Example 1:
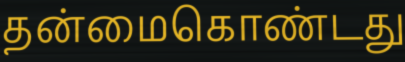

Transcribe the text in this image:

தன்மைகொண்டது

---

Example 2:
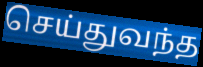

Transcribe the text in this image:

செய்துவந்த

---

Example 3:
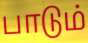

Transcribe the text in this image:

பாடும்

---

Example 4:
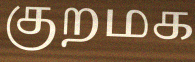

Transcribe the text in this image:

குறமக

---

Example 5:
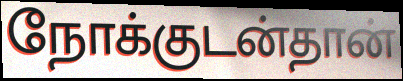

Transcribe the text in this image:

நோக்குடன்தான்